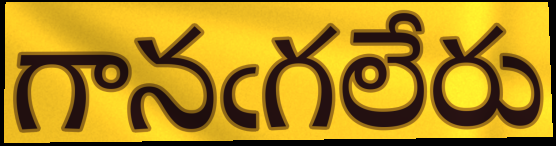
గానఁగలేరు